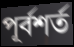
পূর্বশর্ত